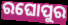
ରଘୋପୁର